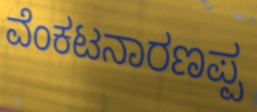
ವೆಂಕಟನಾರಣಪ್ಪ